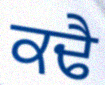
ਕਢੈ